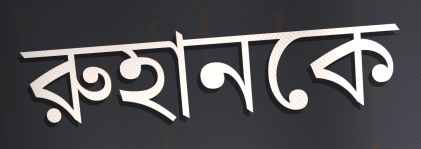
রুহানকে